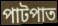
পাটপাত